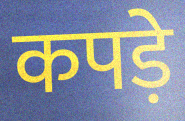
कपड़े